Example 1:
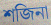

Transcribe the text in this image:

শজিনা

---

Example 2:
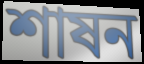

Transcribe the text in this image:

শাষন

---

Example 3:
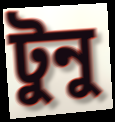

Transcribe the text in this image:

টুনু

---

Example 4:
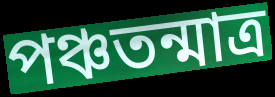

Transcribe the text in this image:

পঞ্চতন্মাত্র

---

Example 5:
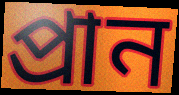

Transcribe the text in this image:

প্রান